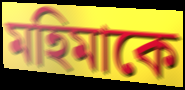
মহিমাকে